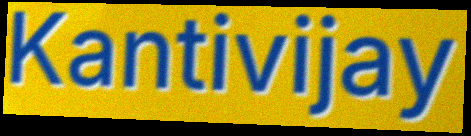
Kantivijay